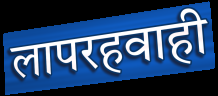
लापरहवाही